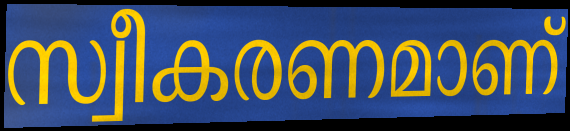
സ്വീകരണമാണ്